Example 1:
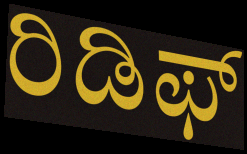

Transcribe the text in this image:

ರಿಡಿಫ್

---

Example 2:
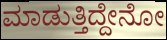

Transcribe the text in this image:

ಮಾಡುತ್ತಿದ್ದೇನೋ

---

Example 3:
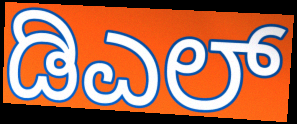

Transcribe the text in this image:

ಡಿಎಲ್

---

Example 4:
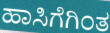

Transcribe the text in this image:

ಹಾಸಿಗೆಗಿಂತ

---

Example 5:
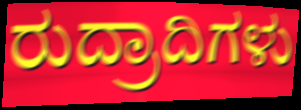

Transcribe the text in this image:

ರುದ್ರಾದಿಗಳು